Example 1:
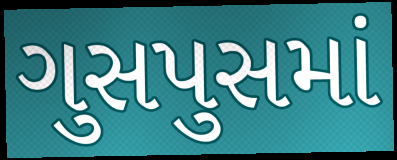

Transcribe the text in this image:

ગુસપુસમાં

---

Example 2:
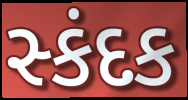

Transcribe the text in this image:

સ્કંદક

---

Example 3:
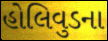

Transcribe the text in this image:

હોલિવુડના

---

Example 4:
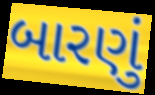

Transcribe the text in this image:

બારણું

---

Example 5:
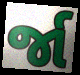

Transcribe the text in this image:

ર્જા